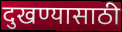
दुखण्यासाठी